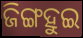
ଜିଙ୍ଗହୁଇ